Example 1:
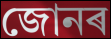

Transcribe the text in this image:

জোনৰ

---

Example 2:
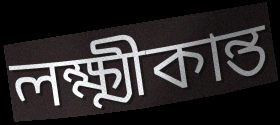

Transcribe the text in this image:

লক্ষ্মীকান্ত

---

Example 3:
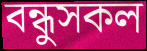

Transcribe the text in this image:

বন্ধুসকল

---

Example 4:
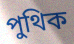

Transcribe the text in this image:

পুথিক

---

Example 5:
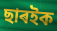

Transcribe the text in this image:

ছাৰইক